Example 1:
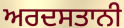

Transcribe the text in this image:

ਅਰਦਸਤਾਨੀ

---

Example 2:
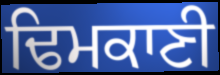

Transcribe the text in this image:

ਢਿਮਕਾਣੀ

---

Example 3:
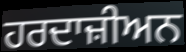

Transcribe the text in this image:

ਹਰਦਾਜ਼ੀਅਨ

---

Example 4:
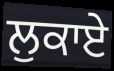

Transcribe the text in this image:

ਲੁਕਾਏ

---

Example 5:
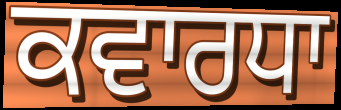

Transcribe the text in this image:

ਕਵਾਰਧਾ